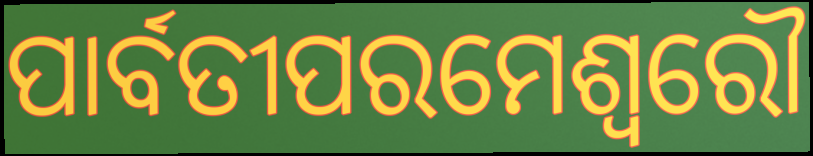
ପାର୍ବତୀପରମେଶ୍ଵରୌ